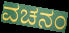
ವಚನಂ